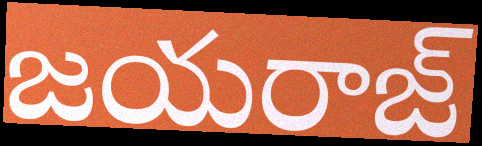
జయరాజ్